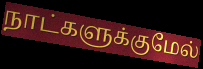
நாட்களுக்குமேல்